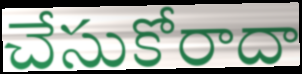
చేసుకోరాదా